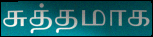
சுத்தமாக